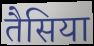
तैसिया